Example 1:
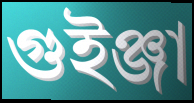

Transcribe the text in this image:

গুইঞ্জা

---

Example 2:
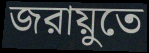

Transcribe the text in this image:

জরায়ুতে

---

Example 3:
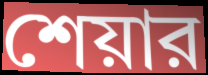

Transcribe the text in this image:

শেয়ার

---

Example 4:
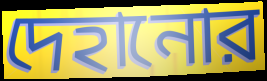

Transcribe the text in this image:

দেহানোর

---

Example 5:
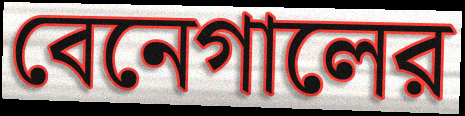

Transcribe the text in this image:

বেনেগালের